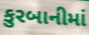
કુરબાનીમાં